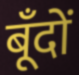
बूँदों